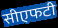
सीएफटी